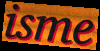
isme